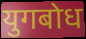
युगबोध